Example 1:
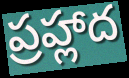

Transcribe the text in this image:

ప్రహ్లాద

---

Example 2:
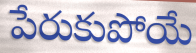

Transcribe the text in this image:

పేరుకుపోయే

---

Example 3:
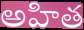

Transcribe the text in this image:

అహిత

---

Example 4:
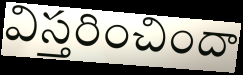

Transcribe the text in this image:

విస్తరించిందా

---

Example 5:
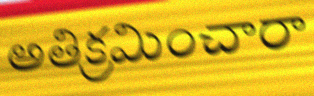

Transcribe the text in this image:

అతిక్రమించారా